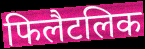
फिलैटलिक